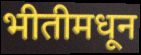
भीतीमधून